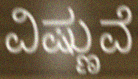
ವಿಷ್ಣುವೆ